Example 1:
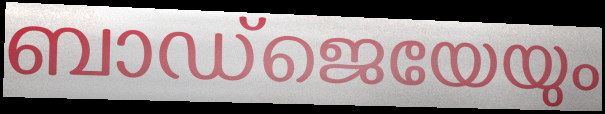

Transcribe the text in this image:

ബാഡ്ജെയേയും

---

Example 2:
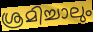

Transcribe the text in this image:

ശ്രമിച്ചാലും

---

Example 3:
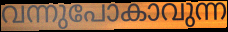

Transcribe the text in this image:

വന്നുപോകാവുന്ന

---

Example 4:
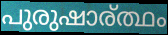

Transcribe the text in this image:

പുരുഷാര്ത്ഥം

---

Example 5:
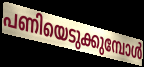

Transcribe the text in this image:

പണിയെടുക്കുമ്പോൾ